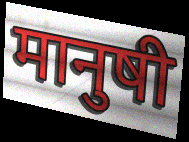
मानुषी